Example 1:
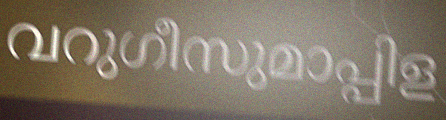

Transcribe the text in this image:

വറുഗീസുമാപ്പിള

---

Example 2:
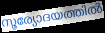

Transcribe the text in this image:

സൂര്യോദയത്തിൽ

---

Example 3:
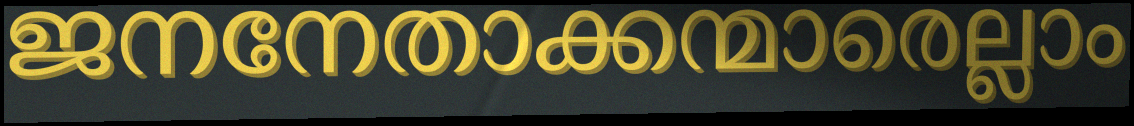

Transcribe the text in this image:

ജനനേതാക്കന്മാരെല്ലാം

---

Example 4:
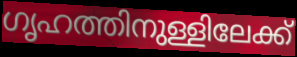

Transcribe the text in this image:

ഗൃഹത്തിനുള്ളിലേക്ക്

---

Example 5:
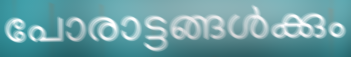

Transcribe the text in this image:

പോരാട്ടങ്ങൾക്കും